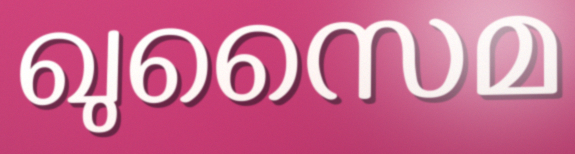
ഖുസൈമ